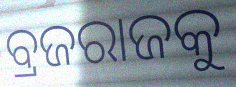
ବ୍ରଜରାଜକୁ